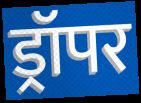
ड्रॉपर